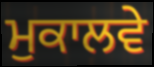
ਮੁਕਾਲਵੇ